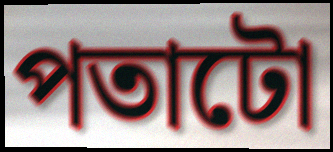
পতাটো